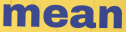
mean